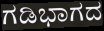
ಗಡಿಭಾಗದ